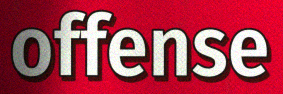
offense